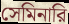
সেমিনারি